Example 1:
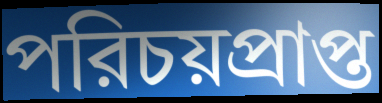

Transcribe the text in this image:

পরিচয়প্রাপ্ত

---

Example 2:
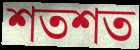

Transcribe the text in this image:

শতশত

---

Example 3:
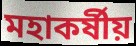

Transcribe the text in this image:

মহাকর্ষীয়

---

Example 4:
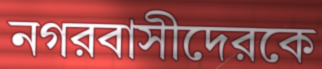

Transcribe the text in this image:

নগরবাসীদেরকে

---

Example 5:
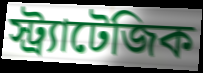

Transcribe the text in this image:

স্ট্র্যাটেজিক